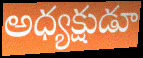
అధ్యక్షుడూ